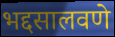
भद्दसालवणे